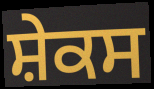
ਸ਼ੇਕਸ